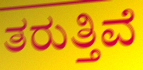
ತರುತ್ತಿವೆ